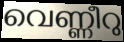
വെണ്ണീറു